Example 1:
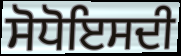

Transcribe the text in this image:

ਸੋਧੋਇਸਦੀ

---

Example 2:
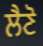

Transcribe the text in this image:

ਲੈਣੋ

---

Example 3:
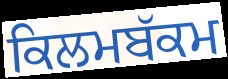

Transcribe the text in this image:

ਕਿਲਮਬੱਕਮ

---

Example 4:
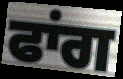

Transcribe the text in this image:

ਫਾਂਗ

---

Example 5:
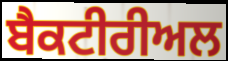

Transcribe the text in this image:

ਬੈਕਟੀਰੀਅਲ